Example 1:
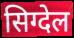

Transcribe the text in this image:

सिग्देल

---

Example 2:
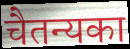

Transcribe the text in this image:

चैतन्यका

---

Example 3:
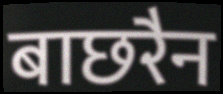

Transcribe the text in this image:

बाछरैन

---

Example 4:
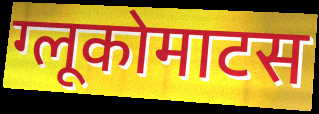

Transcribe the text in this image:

ग्लूकोमाटस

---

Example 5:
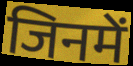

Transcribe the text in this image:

जिनमें